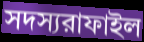
সদস্যরাফাইল